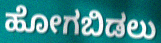
ಹೋಗಬಿಡಲು